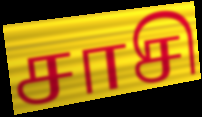
சாசி